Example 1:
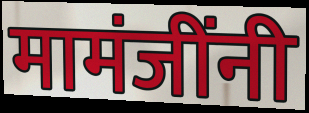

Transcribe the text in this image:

मामंजींनी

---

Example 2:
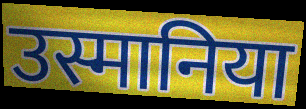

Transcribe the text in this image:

उस्मानिया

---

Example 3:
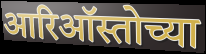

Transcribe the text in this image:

आरिऑस्तोच्या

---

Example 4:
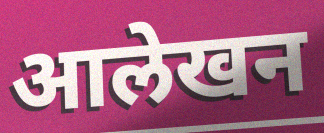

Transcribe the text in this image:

आलेखन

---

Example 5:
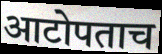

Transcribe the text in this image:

आटोपताच